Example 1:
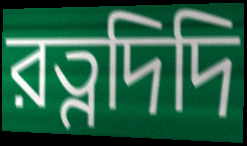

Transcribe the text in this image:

রত্নদিদি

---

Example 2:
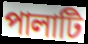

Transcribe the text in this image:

পালাটি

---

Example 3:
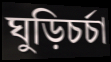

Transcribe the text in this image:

ঘুড়িচর্চা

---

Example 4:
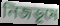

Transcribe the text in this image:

নিজভূমে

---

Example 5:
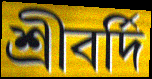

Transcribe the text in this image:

শ্রীবর্দি